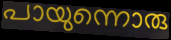
പായുന്നൊരു